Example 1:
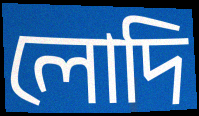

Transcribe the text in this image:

লোদি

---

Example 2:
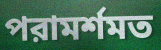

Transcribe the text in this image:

পরামর্শমত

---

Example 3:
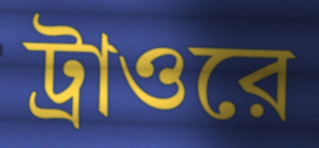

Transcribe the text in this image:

ট্রাওরে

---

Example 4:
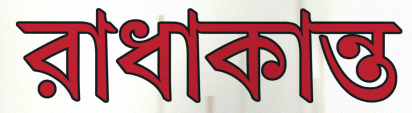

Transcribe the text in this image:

রাধাকান্ত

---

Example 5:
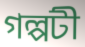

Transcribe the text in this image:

গল্পটী